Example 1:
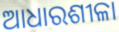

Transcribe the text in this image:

ଆଧାରଶୀଳା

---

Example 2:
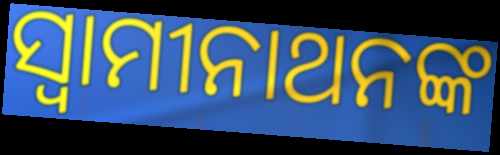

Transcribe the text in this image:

ସ୍ଵାମୀନାଥନଙ୍କ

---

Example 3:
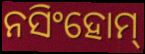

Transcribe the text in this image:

ନସିଂହୋମ୍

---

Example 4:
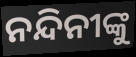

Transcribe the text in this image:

ନନ୍ଦିନୀଙ୍କୁ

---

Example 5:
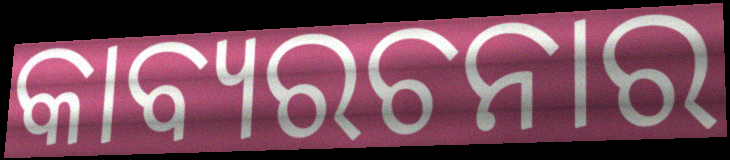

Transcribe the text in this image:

କାବ୍ୟରଚନାର